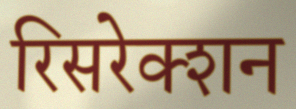
रिसरेक्शन